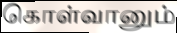
கொள்வானும்